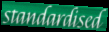
standardised